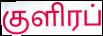
குளிரப்